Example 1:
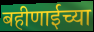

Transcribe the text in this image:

बहीणाईच्या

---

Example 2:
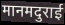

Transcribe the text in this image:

मानमदुराई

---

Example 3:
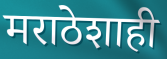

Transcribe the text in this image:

मराठेशाही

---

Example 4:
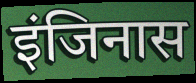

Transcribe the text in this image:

इंजिनास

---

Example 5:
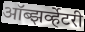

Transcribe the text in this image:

ऑब्झर्व्हेटरी